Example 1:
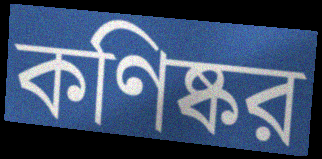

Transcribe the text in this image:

কণিষ্কর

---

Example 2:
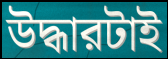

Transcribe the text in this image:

উদ্ধারটাই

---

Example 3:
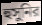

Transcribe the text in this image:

হুসুনির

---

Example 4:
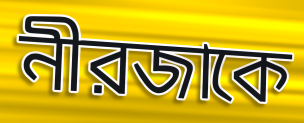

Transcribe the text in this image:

নীরজাকে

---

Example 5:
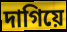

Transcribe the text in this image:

দাগিয়ে